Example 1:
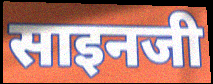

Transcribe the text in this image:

साइनजी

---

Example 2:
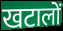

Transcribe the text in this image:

खटालों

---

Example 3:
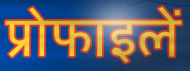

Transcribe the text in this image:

प्रोफाइलें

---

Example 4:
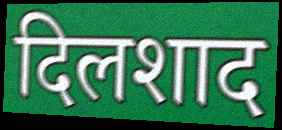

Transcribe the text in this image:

दिलशाद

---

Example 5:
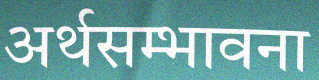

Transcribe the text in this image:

अर्थसम्भावना